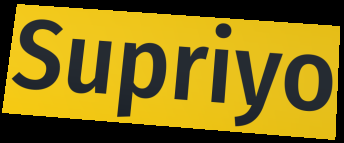
Supriyo